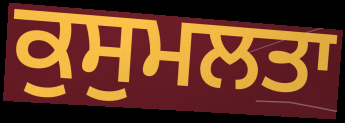
ਕੁਸੁਮਲਤਾ